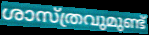
ശാസ്ത്രവുമുണ്ട്